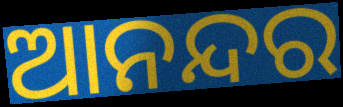
ଆନନ୍ଦର